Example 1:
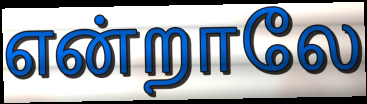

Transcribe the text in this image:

என்றாலே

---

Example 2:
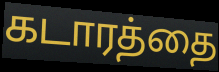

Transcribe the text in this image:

கடாரத்தை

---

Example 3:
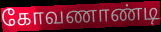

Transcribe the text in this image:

கோவணாண்டி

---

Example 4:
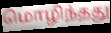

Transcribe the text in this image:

மொழிந்தது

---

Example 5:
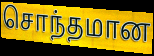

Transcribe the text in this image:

சொந்தமான